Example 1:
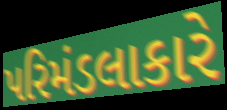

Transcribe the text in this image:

પરિમંડલાકારે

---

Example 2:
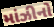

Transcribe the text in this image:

માંઝીનો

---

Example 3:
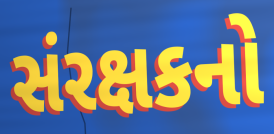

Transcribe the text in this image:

સંરક્ષકનો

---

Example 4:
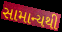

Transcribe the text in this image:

સામાન્યથી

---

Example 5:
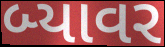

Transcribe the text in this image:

બ્યાવર